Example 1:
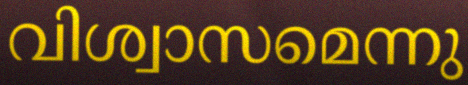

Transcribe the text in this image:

വിശ്വാസമെന്നു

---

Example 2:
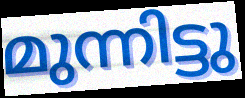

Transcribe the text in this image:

മുന്നിട്ടു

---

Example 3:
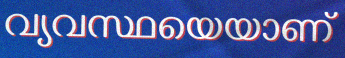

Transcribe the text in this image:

വ്യവസ്ഥയെയാണ്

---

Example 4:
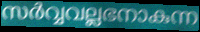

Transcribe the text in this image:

സർവ്വവല്ലഭനാകുന്ന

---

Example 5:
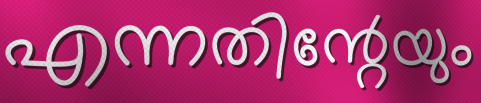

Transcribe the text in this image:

എന്നതിന്റേയും